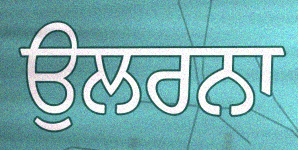
ਉਲਰਨਾ